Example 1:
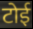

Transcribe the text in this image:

टोई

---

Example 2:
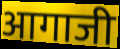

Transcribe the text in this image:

आगाजी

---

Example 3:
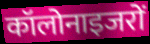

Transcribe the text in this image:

कॉलोनाइजरों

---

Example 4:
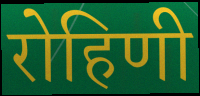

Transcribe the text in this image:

रोहिणी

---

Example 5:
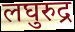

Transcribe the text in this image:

लघुरुद्र